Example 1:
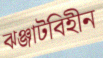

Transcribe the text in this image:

ঝঞ্জাটবিহীন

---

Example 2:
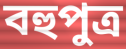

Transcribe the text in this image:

বহুপুত্র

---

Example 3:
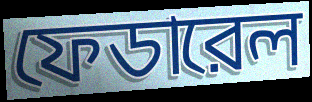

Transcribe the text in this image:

ফেডারেল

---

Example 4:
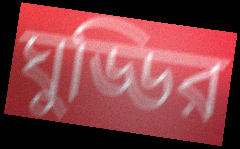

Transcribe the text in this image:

ঘুড্ডির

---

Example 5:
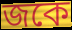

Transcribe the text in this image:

জকে